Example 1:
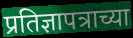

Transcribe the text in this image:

प्रतिज्ञापत्राच्या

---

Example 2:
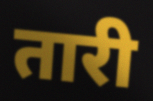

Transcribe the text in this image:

तारी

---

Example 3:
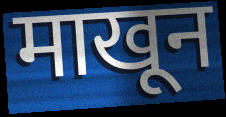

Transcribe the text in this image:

माखून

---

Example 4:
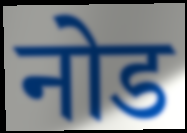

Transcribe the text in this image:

नोड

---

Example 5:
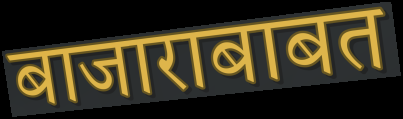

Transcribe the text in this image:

बाजाराबाबत